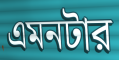
এমনটার